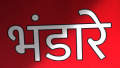
भंडारे